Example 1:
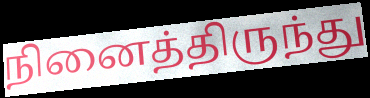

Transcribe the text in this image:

நினைத்திருந்து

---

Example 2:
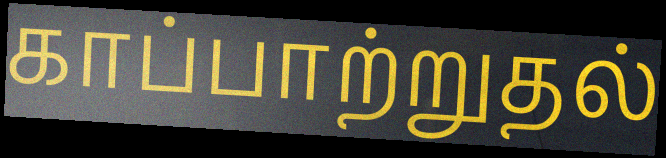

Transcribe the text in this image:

காப்பாற்றுதல்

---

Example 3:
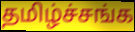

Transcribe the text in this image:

தமிழ்ச்சங்க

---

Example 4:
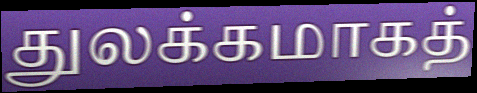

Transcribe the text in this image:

துலக்கமாகத்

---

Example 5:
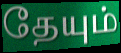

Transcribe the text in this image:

தேயும்